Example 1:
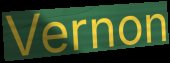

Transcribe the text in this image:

Vernon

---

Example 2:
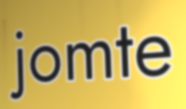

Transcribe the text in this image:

jomte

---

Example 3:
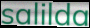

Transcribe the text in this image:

salilda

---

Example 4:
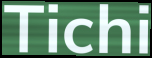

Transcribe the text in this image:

Tichi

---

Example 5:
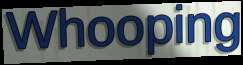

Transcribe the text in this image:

Whooping